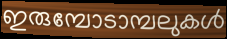
ഇരുമ്പോടാമ്പലുകൾ